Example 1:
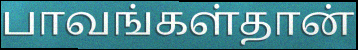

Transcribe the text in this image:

பாவங்கள்தான்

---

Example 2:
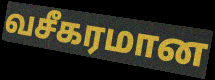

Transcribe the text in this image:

வசீகரமான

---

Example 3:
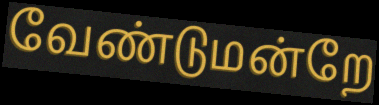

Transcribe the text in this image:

வேண்டுமன்றே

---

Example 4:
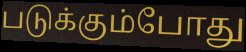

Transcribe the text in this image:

படுக்கும்போது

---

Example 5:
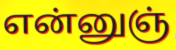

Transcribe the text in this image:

என்னுஞ்